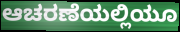
ಆಚರಣೆಯಲ್ಲಿಯೂ